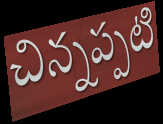
చిన్నప్పటి